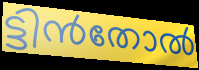
ട്ടിൻതോൽ